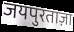
जयपुरताज़ा